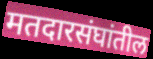
मतदारसंघांतील